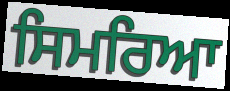
ਸਿਮਰਿਆ